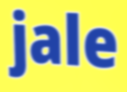
jale